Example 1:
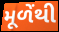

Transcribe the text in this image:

મૂળેંથી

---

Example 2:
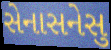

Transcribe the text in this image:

સેનાસનેસુ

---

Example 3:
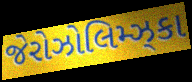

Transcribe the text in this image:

જેરોઝોલિમ્ઝ્કા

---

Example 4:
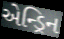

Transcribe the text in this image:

એન્ડ્રિન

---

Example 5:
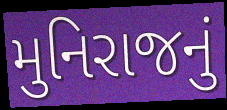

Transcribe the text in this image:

મુનિરાજનું